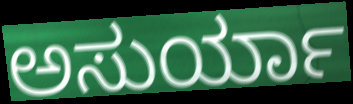
ಅಸುರ್ಯಾ